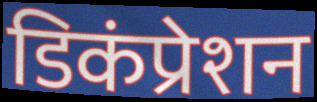
डिकंप्रेशन